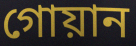
গোয়ান